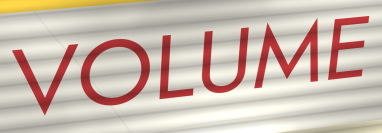
VOLUME